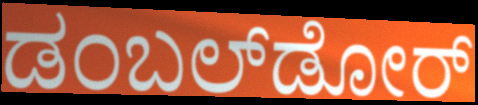
ಡಂಬಲ್‌ಡೋರ್